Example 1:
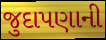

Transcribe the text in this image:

જુદાપણાની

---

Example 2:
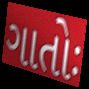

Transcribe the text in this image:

ગાતોઃ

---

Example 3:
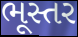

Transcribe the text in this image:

ભૂસ્તર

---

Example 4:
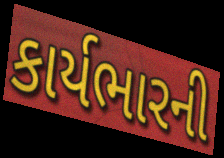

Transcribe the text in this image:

કાર્યભારની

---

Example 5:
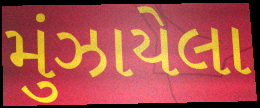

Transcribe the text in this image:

મુંઝાયેલા